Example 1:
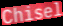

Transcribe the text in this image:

Chisel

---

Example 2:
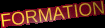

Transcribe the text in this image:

FORMATION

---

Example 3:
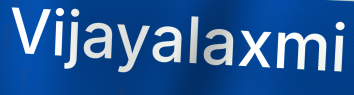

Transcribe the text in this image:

Vijayalaxmi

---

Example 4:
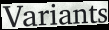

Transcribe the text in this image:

Variants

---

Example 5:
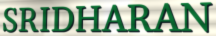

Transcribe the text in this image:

SRIDHARAN